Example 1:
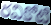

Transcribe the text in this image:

రవికోటి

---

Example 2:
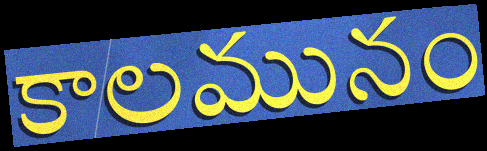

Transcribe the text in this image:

కాలమునం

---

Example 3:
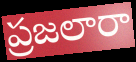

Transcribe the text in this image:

ప్రజలారా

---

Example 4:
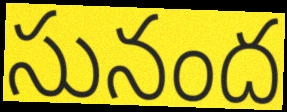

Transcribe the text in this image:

సునంద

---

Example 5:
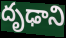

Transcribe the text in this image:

దృఢాని